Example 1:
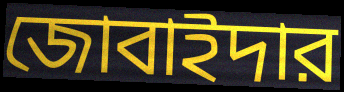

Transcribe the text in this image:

জোবাইদার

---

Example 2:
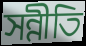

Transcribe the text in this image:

সন্নীতি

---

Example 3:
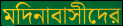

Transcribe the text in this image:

মদিনাবাসীদের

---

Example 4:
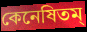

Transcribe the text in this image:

কেনেষিতম্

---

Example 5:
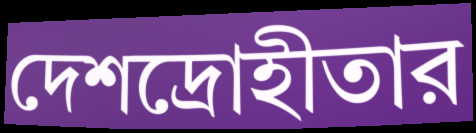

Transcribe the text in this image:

দেশদ্রোহীতার